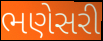
ભણેસરી